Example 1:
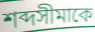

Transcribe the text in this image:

শব্দসীমাকে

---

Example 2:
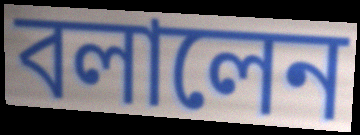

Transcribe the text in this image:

বলালেন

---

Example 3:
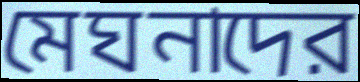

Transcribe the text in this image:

মেঘনাদের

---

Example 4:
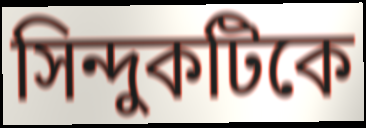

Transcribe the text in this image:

সিন্দুকটিকে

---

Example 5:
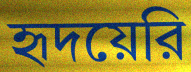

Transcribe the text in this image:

হৃদয়েরি